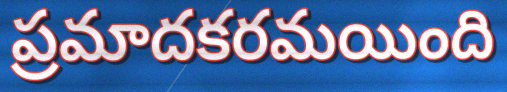
ప్రమాదకరమయింది